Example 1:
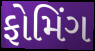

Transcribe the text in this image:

ફોમિંગ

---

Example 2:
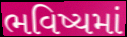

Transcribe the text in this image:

ભવિષ્યમાં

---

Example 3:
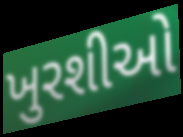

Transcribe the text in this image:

ખુરશીઓ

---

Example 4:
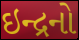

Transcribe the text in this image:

ઇન્દ્રનો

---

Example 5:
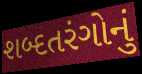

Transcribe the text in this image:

શબ્દતરંગોનું